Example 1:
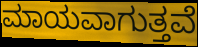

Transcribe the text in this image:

ಮಾಯವಾಗುತ್ತವೆ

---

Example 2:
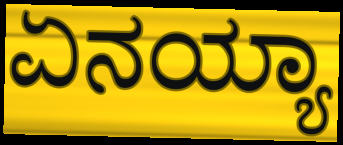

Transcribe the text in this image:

ಏನಯ್ಯಾ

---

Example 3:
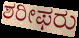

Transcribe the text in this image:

ಶರೀಫರು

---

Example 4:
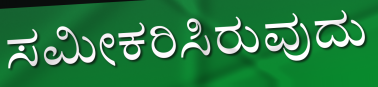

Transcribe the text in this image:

ಸಮೀಕರಿಸಿರುವುದು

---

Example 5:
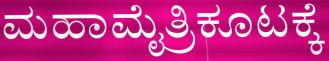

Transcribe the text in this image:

ಮಹಾಮೈತ್ರಿಕೂಟಕ್ಕೆ